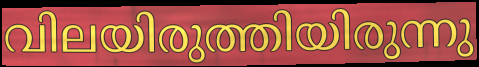
വിലയിരുത്തിയിരുന്നു